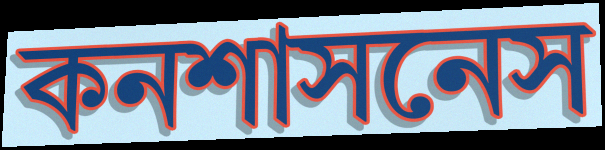
কনশাসনেস